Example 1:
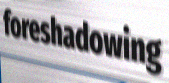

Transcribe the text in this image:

foreshadowing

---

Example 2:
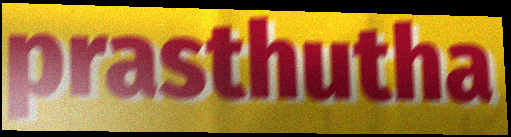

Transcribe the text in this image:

prasthutha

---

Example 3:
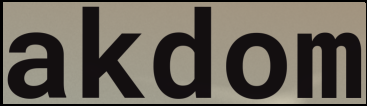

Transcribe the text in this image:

akdom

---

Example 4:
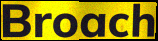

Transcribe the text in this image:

Broach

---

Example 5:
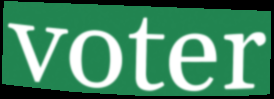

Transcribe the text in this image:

voter